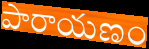
పారాయణం